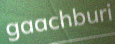
gaachburi